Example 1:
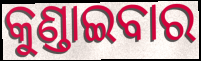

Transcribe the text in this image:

କୁଣ୍ଡାଇବାର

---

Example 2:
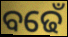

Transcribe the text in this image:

ବଢେଁ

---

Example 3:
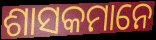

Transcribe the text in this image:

ଶାସକମାନେ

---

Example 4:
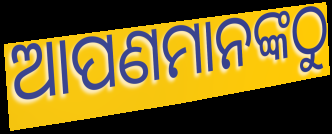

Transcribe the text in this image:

ଆପଣମାନଙ୍କଠୁ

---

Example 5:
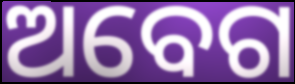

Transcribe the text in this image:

ଅବେଗ